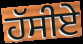
ਹੱਸੀਏ